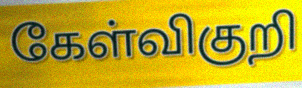
கேள்விகுறி